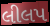
લીલપ